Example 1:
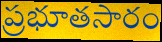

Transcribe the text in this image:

ప్రభూతసారం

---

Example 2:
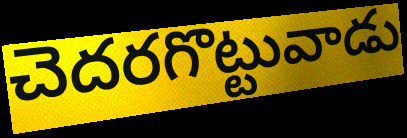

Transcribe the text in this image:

చెదరగొట్టువాడు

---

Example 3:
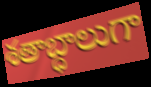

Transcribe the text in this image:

శతాబ్ధాలుగా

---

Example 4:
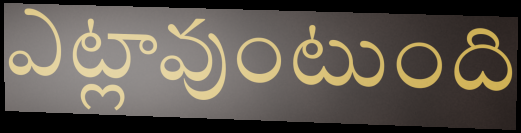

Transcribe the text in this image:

ఎట్లావుంటుంది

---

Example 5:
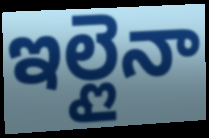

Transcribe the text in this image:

ఇల్లైనా